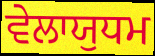
ਵੇਲਾਯੁਧਮ